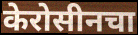
केरोसीनचा